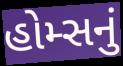
હોમ્સનું